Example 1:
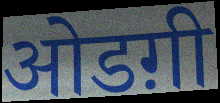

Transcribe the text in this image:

ओडग़ी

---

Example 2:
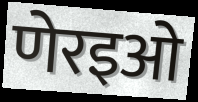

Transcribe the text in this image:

णेरइओ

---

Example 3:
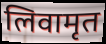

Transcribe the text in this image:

लिवामृत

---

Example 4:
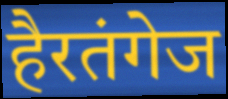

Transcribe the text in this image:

हैरतंगेज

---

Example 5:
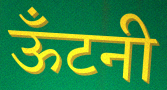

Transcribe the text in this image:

ऊँटनी